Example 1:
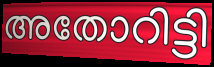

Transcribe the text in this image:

അതോറിട്ടി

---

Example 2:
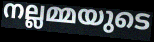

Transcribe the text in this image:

നല്ലമ്മയുടെ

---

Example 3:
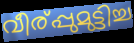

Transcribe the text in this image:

വീര്പ്പുമുട്ടിച്ച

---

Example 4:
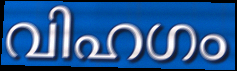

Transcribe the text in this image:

വിഹഗം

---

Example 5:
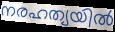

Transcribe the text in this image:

നരഹത്യയിൽ